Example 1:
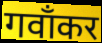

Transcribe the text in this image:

गवाँकर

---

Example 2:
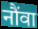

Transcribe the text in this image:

नौंवा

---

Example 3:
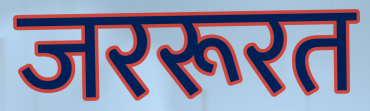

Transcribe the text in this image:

जररूरत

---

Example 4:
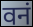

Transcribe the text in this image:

वनं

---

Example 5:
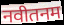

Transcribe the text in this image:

नवीतनम